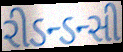
રીડન્ડન્સી